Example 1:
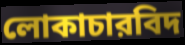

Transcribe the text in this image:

লোকাচারবিদ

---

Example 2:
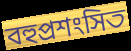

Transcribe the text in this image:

বহুপ্রশংসিত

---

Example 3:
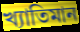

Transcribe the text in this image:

খ্যাতিমান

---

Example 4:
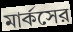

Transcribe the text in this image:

মার্কসের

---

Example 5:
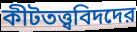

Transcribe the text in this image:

কীটতত্ত্ববিদদের